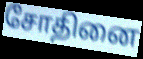
சோதினை